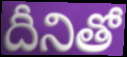
దీనితో